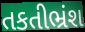
તકતીભ્રંશ